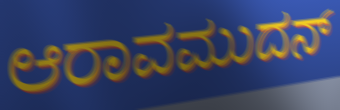
ಆರಾವಮುದನ್